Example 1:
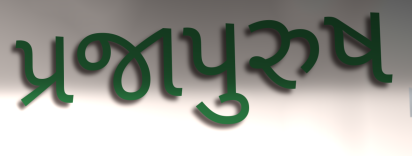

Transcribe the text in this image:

પ્રજાપુરુષ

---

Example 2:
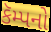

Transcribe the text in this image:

કૅમ્પનો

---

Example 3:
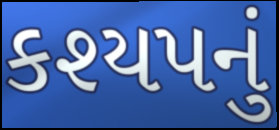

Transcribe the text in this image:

કશ્યપનું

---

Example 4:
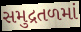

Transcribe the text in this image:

સમુદ્રતળમાં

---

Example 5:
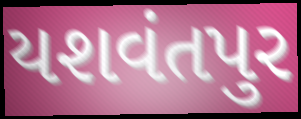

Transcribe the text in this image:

યશવંતપુર